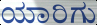
ಯಾರಿಗು